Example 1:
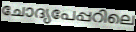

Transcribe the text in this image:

ചോദ്യപേപ്പറിലെ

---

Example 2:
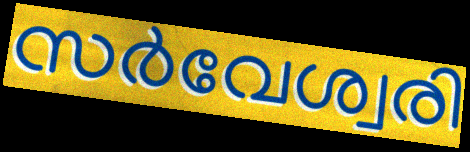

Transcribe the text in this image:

സർവേശ്വരി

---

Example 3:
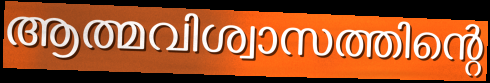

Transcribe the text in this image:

ആത്മവിശ്വാസത്തിന്റെ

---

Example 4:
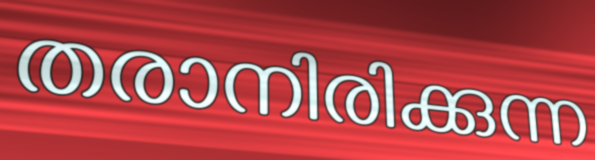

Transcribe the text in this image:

തരാനിരിക്കുന്ന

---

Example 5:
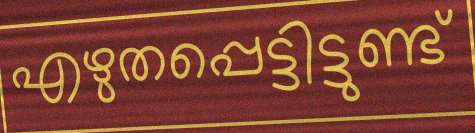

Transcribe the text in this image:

എഴുതപ്പെട്ടിട്ടുണ്ട്